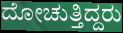
ದೋಚುತ್ತಿದ್ದರು